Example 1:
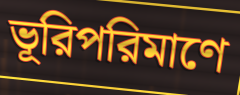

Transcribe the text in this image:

ভূরিপরিমাণে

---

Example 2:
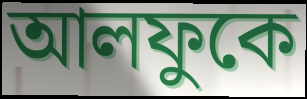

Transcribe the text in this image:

আলফুকে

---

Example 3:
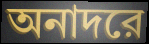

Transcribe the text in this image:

অনাদরে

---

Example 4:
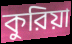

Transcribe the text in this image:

কুরিয়া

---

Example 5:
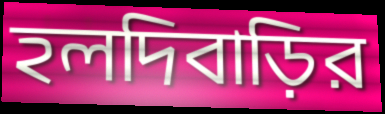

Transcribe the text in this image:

হলদিবাড়ির